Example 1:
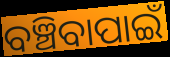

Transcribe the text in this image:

ବଞ୍ଚିବାପାଇଁ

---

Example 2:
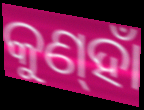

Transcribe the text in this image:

କୁଣ୍‌ହାଁ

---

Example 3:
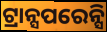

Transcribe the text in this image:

ଟ୍ରାନ୍ସପରେନ୍ସି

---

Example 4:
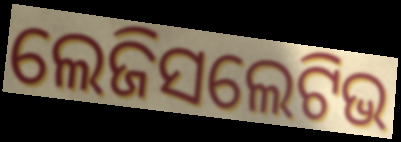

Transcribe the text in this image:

ଲେଜିସଲେଟିଭ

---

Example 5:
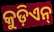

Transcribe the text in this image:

କୁଡ଼ିଏନ୍